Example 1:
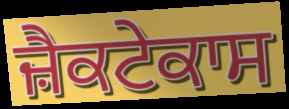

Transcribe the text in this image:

ਜ਼ੈਕਟੇਕਾਸ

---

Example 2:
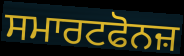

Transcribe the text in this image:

ਸਮਾਰਟਫੋਨਜ਼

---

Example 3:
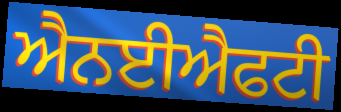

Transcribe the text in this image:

ਐਨਈਐਫਟੀ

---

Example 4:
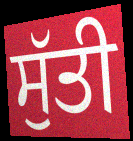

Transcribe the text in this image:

ਸੁੱਤੀ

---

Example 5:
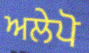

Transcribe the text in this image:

ਅਲੇਪੋ